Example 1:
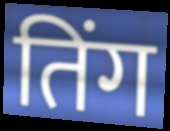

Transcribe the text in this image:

तिंग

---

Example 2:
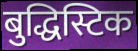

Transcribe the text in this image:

बुद्धिस्टिक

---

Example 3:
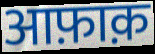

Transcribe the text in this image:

आफ़ाक़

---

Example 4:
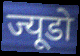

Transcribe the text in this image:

ज्यूडो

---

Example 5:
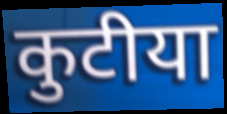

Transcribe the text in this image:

कुटीया